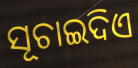
ସୂଚାଇଦିଏ